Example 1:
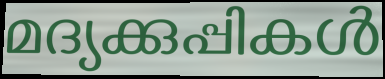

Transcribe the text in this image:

മദ്യക്കുപ്പികൾ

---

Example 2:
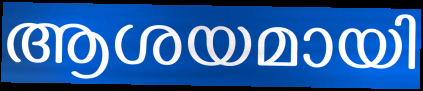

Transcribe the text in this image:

ആശയമായി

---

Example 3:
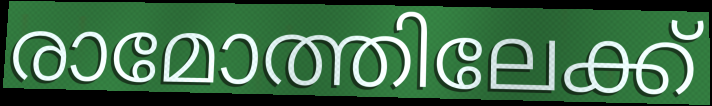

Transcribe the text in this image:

രാമോത്തിലേക്ക്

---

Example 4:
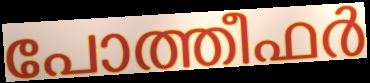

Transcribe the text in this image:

പോത്തീഫർ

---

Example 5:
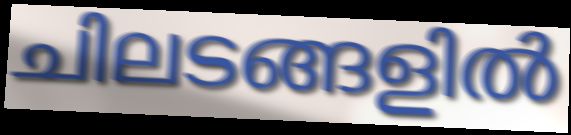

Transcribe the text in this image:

ചിലടങ്ങളിൽ